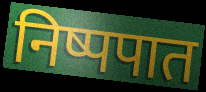
निष्पपात